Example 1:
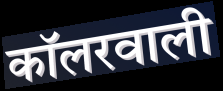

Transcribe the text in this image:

कॉलरवाली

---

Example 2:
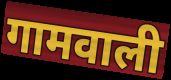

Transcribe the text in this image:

गामवाली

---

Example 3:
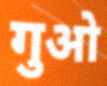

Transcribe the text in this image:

गुओ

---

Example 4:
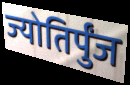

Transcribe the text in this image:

ज्योतिर्पुंज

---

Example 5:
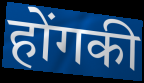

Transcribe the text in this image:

होंगकी